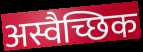
अस्वैच्छिक